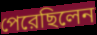
পেরেছিলেন